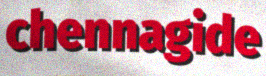
chennagide